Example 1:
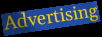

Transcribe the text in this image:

Advertising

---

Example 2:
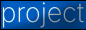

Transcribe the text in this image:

project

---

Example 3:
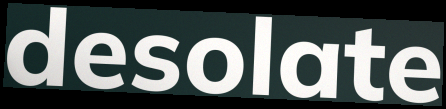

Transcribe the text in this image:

desolate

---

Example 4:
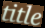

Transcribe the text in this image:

title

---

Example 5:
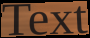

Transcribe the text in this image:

Text